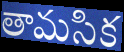
తామసిక